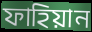
ফাহিয়ান